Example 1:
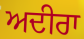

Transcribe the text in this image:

ਅਦੀਰਾ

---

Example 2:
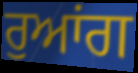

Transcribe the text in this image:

ਰੁਆਂਗ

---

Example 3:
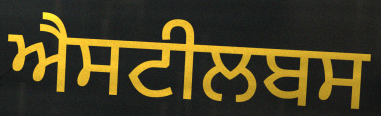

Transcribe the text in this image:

ਐਸਟੀਲਬਸ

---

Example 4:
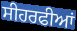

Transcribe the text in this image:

ਸੀਹਰਫੀਆਂ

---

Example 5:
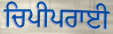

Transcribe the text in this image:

ਚਿਪੀਪਰਾਈ